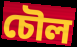
চৌল